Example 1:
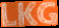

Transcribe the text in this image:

LKG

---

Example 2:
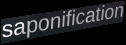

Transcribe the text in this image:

saponification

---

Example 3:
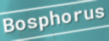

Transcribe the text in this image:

Bosphorus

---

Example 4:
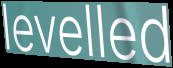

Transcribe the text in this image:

levelled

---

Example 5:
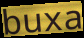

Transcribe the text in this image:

buxa